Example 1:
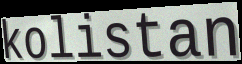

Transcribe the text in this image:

kolistan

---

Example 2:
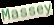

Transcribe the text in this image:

Massey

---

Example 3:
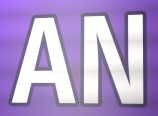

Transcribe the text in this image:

AN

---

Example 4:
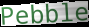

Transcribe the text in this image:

Pebble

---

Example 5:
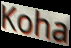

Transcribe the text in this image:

Koha